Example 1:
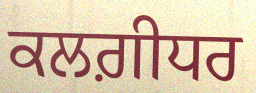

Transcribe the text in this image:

ਕਲਗ਼ੀਧਰ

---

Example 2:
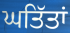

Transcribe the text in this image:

ਘਤਿੱਤਾਂ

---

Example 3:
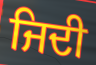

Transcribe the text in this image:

ਜਿਦੀ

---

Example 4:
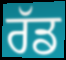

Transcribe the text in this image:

ਰੱਡ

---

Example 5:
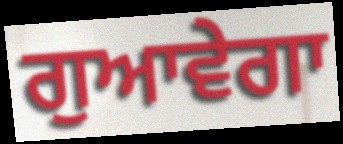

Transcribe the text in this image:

ਗੁਆਵੇਗਾ